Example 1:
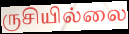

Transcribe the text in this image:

ருசியில்லை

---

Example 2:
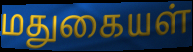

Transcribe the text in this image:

மதுகையள்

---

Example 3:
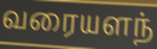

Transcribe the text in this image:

வரையளந்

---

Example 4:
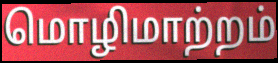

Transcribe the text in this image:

மொழிமாற்றம்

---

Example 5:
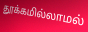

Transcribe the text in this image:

தூக்கமில்லாமல்